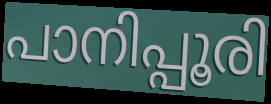
പാനിപ്പൂരി